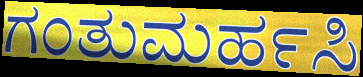
ಗಂತುಮರ್ಹಸಿ